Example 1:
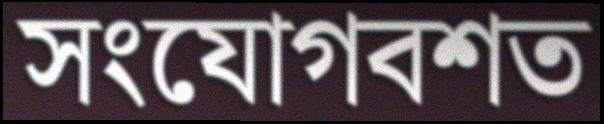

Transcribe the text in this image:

সংযোগবশত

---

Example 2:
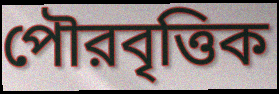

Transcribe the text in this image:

পৌরবৃত্তিক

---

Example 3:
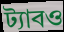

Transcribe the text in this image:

ট্যাবও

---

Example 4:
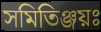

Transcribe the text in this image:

সমিতিঞ্জয়ঃ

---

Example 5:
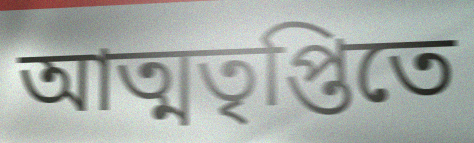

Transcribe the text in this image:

আত্মতৃপ্তিতে